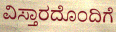
ವಿಸ್ತಾರದೊಂದಿಗೆ